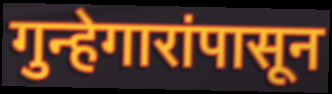
गुन्हेगारांपासून